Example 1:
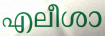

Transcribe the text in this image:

എലീശാ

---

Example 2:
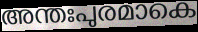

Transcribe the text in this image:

അന്തഃപുരമാകെ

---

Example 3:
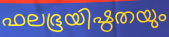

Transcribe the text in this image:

ഫലഭൂയിഷ്ഠതയും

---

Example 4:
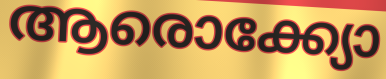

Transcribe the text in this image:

ആരൊക്ക്യോ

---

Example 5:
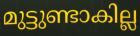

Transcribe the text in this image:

മുട്ടുണ്ടാകില്ല